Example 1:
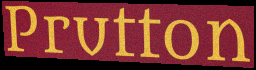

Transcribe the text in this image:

Prutton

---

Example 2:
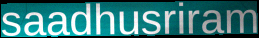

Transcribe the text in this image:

saadhusriram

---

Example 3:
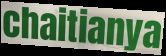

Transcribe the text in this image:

chaitianya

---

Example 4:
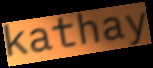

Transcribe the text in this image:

kathay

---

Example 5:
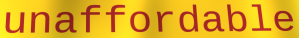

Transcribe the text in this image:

unaffordable